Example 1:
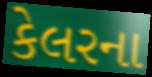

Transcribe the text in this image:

કેલરના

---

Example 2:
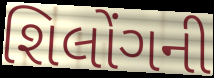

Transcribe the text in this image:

શિલોંગની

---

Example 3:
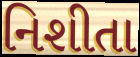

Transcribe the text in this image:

નિશીતા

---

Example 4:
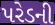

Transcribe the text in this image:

પરેડની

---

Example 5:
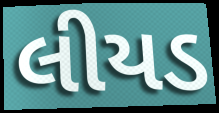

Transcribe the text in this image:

લીયડ